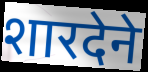
शारदेने